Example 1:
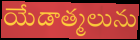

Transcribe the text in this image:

యేడాత్మలును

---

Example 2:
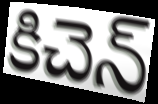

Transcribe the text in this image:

కిచెన్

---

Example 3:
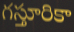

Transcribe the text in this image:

గస్తూరికా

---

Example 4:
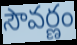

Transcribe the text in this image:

సౌవర్ణం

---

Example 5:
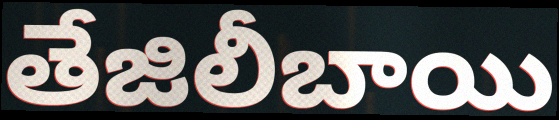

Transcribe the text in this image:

తేజిలీబాయి